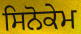
ਸਿਨੋਕੇਮ